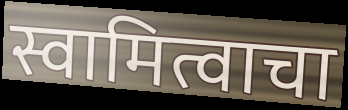
स्वामित्वाचा